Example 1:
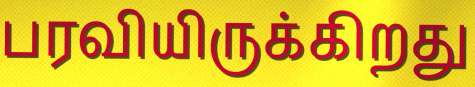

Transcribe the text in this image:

பரவியிருக்கிறது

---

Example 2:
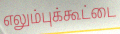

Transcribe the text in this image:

எலும்புக்கூட்டை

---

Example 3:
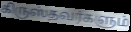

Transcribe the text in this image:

கிருஸ்தவர்களும்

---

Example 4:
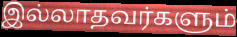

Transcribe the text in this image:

இல்லாதவர்களும்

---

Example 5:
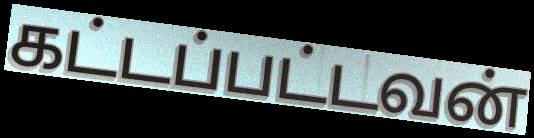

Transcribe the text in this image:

கட்டப்பட்டவன்